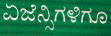
ಏಜೆನ್ಸಿಗಳಿಗೂ